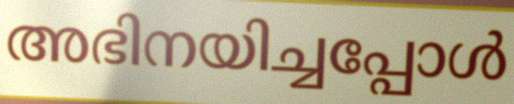
അഭിനയിച്ചപ്പോൾ